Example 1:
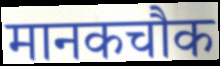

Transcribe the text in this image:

मानकचौक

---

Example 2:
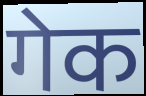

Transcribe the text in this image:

गेक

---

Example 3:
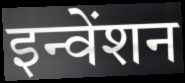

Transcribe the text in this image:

इन्वेंशन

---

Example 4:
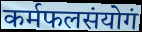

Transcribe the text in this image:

कर्मफलसंयोगं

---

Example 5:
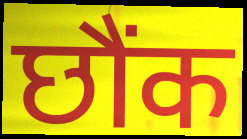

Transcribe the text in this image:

छौंक